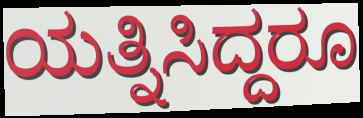
ಯತ್ನಿಸಿದ್ದರೂ